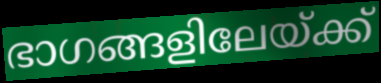
ഭാഗങ്ങളിലേയ്ക്ക്